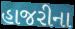
હાજરીના